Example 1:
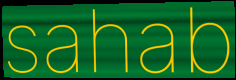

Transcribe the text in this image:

sahab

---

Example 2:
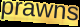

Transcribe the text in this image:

prawns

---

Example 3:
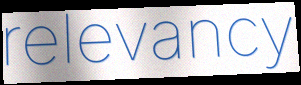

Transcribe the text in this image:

relevancy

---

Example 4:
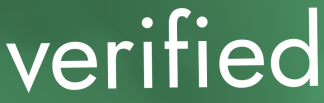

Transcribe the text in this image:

verified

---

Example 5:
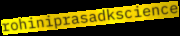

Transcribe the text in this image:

rohiniprasadkscience